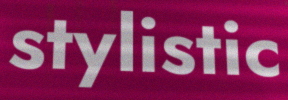
stylistic